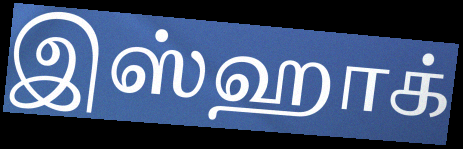
இஸ்ஹாக்